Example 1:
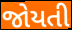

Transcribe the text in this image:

જોયતી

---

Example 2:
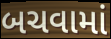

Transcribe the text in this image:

બચવામાં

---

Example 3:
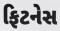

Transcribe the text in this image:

ફિટનેસ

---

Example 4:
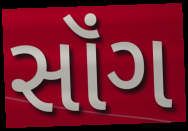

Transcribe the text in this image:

સૉંગ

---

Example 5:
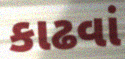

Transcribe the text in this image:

કાઢવાં